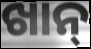
ଖାନ୍